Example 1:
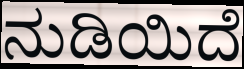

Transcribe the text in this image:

ನುಡಿಯಿದೆ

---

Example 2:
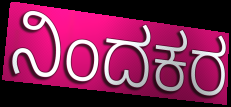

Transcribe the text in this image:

ನಿಂದಕರ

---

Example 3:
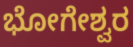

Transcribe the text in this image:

ಭೋಗೇಶ್ವರ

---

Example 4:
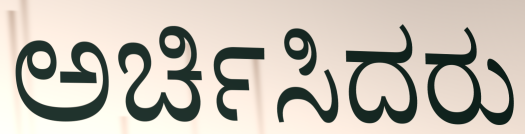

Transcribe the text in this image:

ಅರ್ಚಿಸಿದರು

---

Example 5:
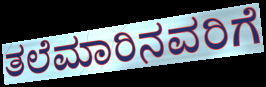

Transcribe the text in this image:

ತಲೆಮಾರಿನವರಿಗೆ